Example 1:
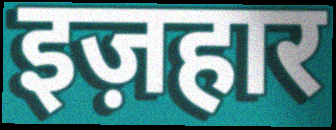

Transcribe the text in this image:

इज़हार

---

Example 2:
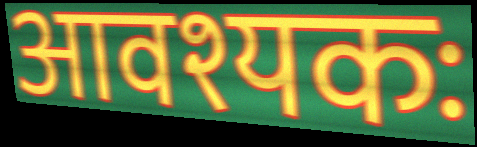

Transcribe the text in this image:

आवश्यकः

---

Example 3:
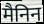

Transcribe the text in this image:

मैनिन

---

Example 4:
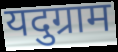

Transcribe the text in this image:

यदुग्राम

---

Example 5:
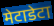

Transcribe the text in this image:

मेटाडेटा